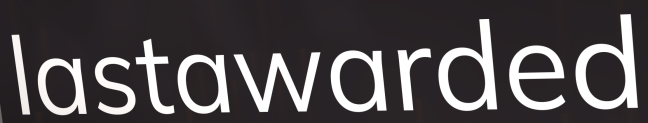
lastawarded